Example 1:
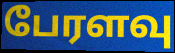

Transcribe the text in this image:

பேரளவு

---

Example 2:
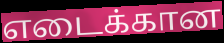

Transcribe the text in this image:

எடைக்கான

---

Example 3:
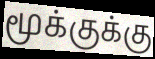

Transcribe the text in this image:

மூக்குக்கு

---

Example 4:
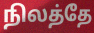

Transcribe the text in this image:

நிலத்தே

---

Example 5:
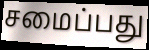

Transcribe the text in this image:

சமைப்பது